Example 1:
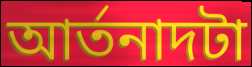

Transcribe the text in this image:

আর্তনাদটা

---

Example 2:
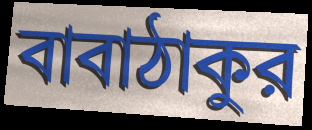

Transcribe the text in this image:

বাবাঠাকুর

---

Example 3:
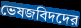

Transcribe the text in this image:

ভেষজবিদদের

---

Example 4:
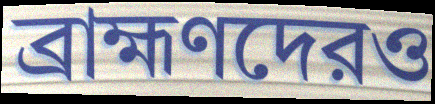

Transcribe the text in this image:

ব্রাহ্মণদেরও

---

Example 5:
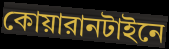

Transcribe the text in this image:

কোয়ারানটাইনে